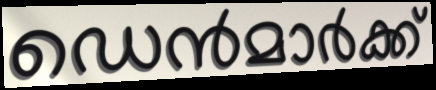
ഡെൻമാർക്ക്